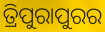
ତ୍ରିପୁରାପୁରର